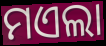
ମଏଲା